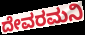
ದೇವರಮನಿ